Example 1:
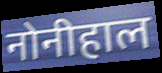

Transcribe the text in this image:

नोनीहाल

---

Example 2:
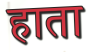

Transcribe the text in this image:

हाता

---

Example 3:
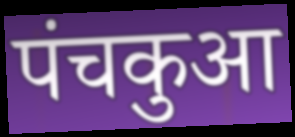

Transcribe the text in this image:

पंचकुआ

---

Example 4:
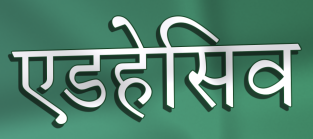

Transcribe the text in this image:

एडहेसिव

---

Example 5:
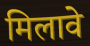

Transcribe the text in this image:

मिलावे